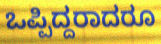
ಒಪ್ಪಿದ್ದರಾದರೂ